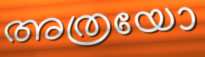
അത്രയോ